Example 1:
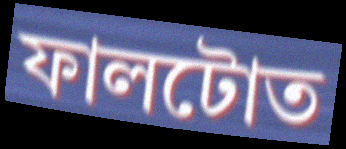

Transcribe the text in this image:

ফালটোত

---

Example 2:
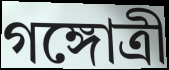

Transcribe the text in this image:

গঙ্গোত্ৰী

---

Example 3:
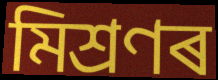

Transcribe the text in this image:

মিশ্ৰণৰ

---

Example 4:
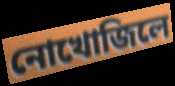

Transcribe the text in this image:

নোখোজিলে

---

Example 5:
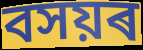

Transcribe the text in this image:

বসয়ৰ